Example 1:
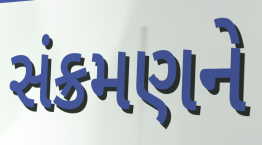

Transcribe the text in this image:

સંક્રમણને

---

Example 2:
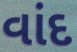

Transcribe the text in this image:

વાંદ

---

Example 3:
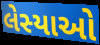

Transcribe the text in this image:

લેસ્યાઓ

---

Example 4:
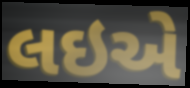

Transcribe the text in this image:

લઇએ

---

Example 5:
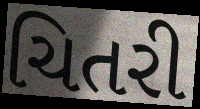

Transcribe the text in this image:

ચિતરી